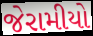
જેરામીયો